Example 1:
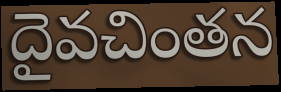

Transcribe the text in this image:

దైవచింతన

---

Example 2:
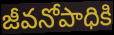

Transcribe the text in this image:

జీవనోపాధికి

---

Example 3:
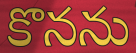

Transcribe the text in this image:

కొనను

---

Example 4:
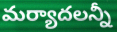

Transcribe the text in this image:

మర్యాదలన్నీ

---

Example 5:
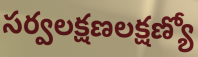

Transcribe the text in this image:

సర్వలక్షణలక్షణ్యో